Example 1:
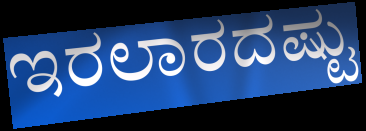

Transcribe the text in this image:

ಇರಲಾರದಷ್ಟು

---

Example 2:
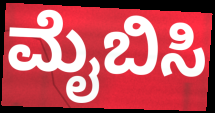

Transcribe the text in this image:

ಮೈಬಿಸಿ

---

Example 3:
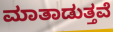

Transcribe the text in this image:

ಮಾತಾಡುತ್ತವೆ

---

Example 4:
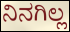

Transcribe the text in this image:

ನಿನಗಿಲ್ಲ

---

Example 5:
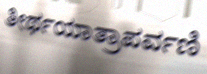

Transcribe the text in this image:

ತೀರ್ಥಯಾತ್ರಾಪರ್ವಣಿ